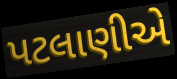
પટલાણીએ